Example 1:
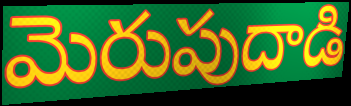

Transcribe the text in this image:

మెరుపుదాడి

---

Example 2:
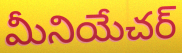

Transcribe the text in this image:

మీనియేచర్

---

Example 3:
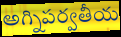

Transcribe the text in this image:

అగ్నిపర్వతీయ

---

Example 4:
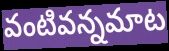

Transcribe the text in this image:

వంటివన్నమాట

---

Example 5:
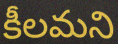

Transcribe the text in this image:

కీలమని